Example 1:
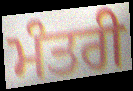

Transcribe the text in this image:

ਮੰਤਰੀ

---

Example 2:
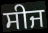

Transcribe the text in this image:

ਸੀਜ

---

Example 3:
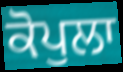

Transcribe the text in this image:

ਕੋਪੁਲਾ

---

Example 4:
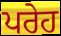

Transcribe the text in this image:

ਪਰੇਹ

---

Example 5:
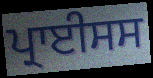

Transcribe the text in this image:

ਪ੍ਰਾਈਸਸ